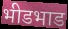
भीडभाड